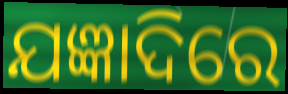
ଯଜ୍ଞାଦିରେ